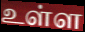
உள்ள